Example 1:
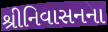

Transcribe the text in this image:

શ્રીનિવાસનના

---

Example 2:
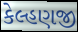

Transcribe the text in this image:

કેલ્હણજી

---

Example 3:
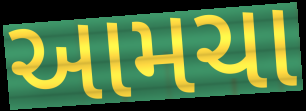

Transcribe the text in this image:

આમચા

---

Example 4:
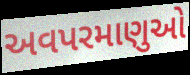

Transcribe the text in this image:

અવપરમાણુઓ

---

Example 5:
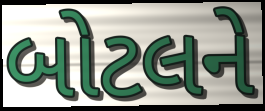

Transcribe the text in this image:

બોટલને